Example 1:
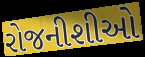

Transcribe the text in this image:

રોજનીશીઓ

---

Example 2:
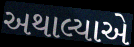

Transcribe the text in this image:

અથાલ્યાએ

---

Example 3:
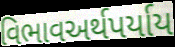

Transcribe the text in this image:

વિભાવઅર્થપર્યાય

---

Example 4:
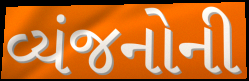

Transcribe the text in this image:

વ્યંજનોની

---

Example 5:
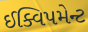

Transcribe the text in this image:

ઈક્વિપમેન્ટ